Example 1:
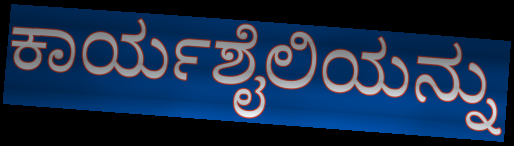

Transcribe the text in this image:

ಕಾರ್ಯಶೈಲಿಯನ್ನು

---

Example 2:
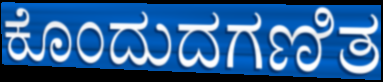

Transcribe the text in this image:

ಕೊಂದುದಗಣಿತ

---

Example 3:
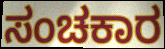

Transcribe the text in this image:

ಸಂಚಕಾರ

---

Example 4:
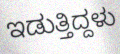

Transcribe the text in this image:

ಇಡುತ್ತಿದ್ದಳು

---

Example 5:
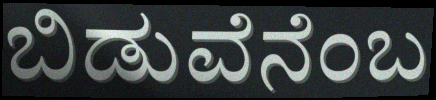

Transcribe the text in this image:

ಬಿಡುವೆನೆಂಬ